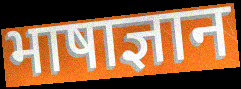
भाषाज्ञान